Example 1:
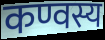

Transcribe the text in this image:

कण्वस्य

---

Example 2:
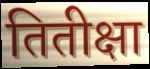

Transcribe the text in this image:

तितीक्षा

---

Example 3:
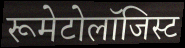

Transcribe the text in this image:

रूमेटोलॉजिस्ट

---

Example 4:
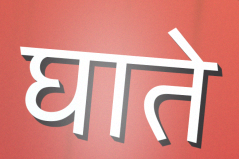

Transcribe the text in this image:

घाते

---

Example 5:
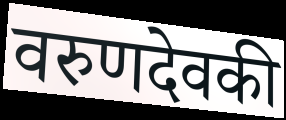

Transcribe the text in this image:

वरुणदेवकी